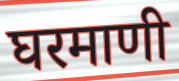
घरमाणी